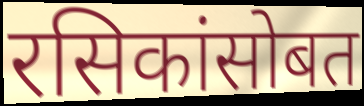
रसिकांसोबत